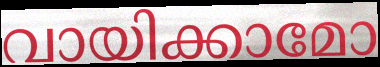
വായിക്കാമോ